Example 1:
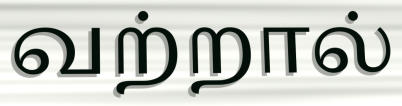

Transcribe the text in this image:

வற்றால்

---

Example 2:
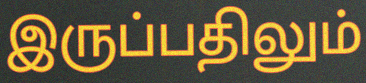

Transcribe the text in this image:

இருப்பதிலும்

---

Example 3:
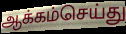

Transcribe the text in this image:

ஆக்கம்செய்து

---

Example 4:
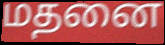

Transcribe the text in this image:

மதனை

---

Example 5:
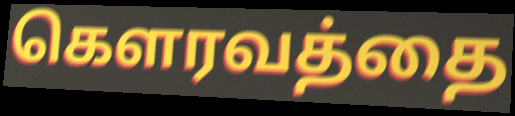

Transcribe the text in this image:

கௌரவத்தை